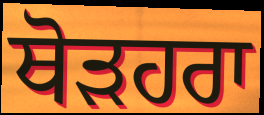
ਥੋੜਹਰਾ